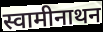
स्वामीनाथन